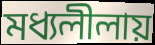
মধ্যলীলায়